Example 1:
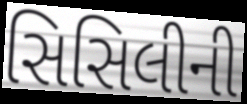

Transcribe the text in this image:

સિસિલીની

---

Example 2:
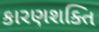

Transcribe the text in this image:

કારણશક્તિ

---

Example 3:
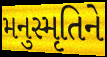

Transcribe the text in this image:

મનુસ્મૃતિને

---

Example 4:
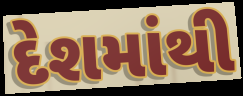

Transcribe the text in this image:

દેશમાંથી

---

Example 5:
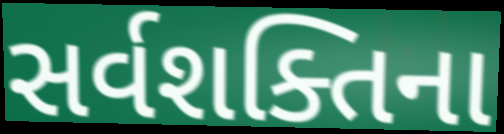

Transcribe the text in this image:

સર્વશક્તિના